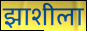
झाशीला